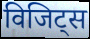
विजिट्स